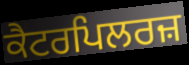
ਕੈਟਰਪਿਲਰਜ਼